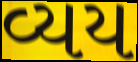
વ્યય